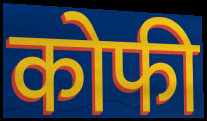
कोफी